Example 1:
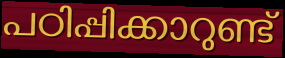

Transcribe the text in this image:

പഠിപ്പിക്കാറുണ്ട്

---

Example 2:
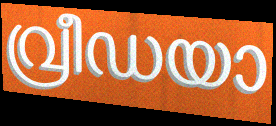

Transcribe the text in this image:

വ്രീഡയാ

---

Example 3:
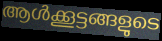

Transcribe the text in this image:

ആൾക്കൂട്ടങ്ങളുടെ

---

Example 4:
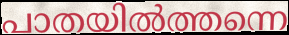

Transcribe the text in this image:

പാതയിൽത്തന്നെ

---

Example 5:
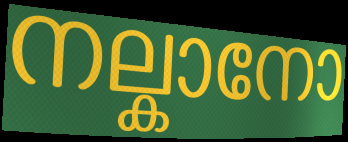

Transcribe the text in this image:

നല്കാനോ